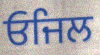
ਓਜਿਲ